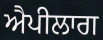
ਐਪੀਲਾਗ